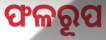
ଫଳରୂପ